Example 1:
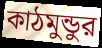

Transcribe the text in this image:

কাঠমুন্ডুর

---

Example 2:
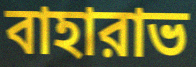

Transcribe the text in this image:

বাহারাভ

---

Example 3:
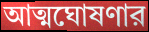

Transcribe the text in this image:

আত্মঘোষণার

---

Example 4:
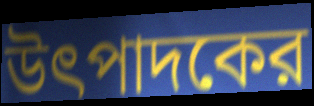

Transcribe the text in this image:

উৎপাদকের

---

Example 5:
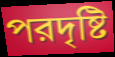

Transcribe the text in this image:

পরদৃষ্টি